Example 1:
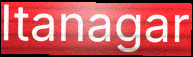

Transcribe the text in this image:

Itanagar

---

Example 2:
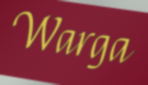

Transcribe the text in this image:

Warga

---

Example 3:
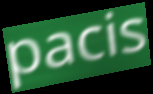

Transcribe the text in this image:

pacis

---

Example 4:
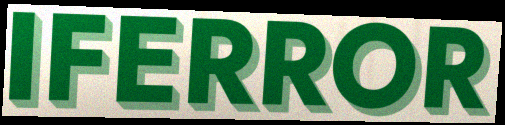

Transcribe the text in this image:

IFERROR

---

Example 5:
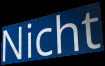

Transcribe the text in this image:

Nicht